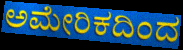
ಅಮೇರಿಕದಿಂದ